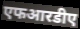
एफआरडीए